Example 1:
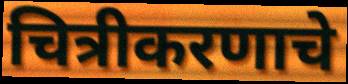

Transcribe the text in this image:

चित्रीकरणाचे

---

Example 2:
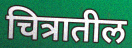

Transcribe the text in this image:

चित्रातील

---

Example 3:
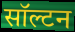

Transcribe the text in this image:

सॉल्टन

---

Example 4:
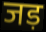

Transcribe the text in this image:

जड़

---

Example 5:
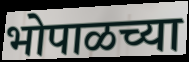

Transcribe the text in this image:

भोपाळच्या